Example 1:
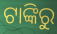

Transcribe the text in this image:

ଟାଙ୍କିରୁ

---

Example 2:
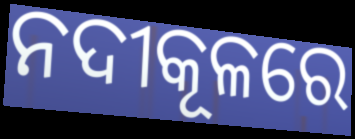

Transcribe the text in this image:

ନଦୀକୂଳରେ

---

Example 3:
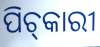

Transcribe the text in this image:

ପିଚ୍‌କାରୀ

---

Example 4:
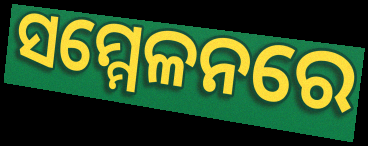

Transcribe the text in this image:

ସମ୍ମେଳନରେ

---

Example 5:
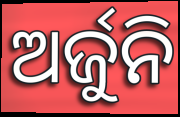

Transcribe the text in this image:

ଅର୍ଜୁନି